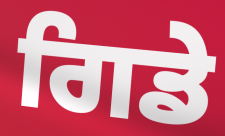
ਗਿਡੇ